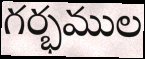
గర్భముల